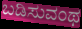
ಬಡಿಸುವಂಥ